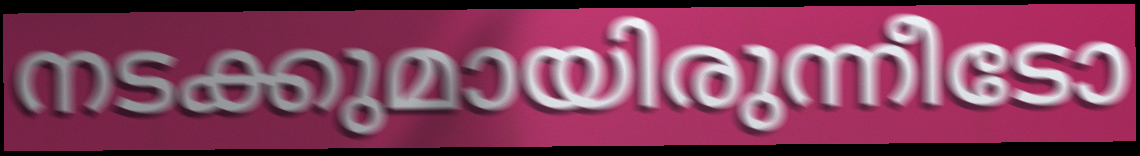
നടക്കുമായിരുന്നീടോ